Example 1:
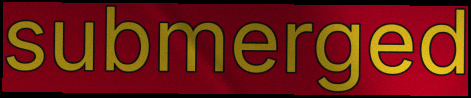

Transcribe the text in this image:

submerged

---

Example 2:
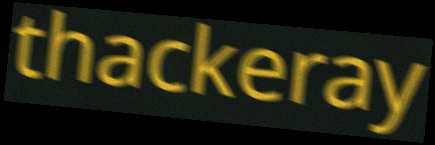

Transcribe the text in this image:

thackeray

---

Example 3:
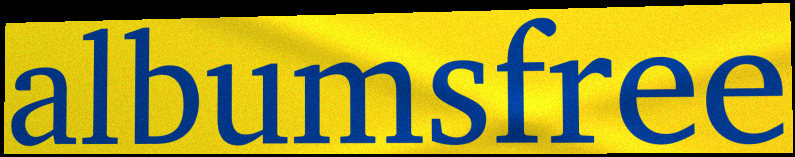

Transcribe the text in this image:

albumsfree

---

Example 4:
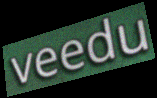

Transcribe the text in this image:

veedu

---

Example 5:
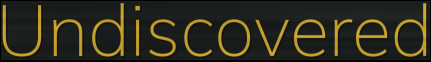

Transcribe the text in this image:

Undiscovered